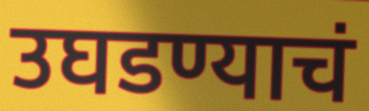
उघडण्याचं